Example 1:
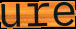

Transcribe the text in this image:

ure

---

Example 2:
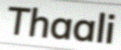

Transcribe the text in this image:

Thaali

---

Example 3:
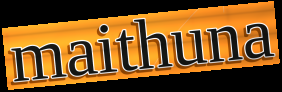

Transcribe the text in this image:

maithuna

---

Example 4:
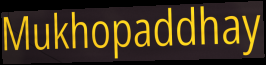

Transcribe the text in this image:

Mukhopaddhay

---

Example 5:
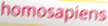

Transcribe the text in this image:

homosapiens